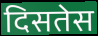
दिसतेस